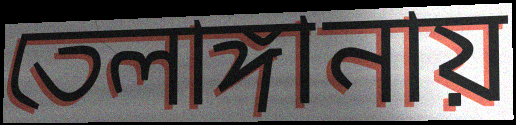
তেলাঙ্গানায়